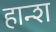
हान्श